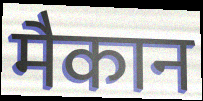
मैकान